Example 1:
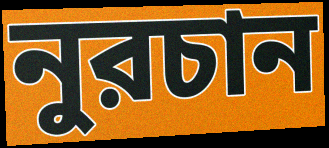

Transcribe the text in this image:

নুরচান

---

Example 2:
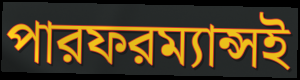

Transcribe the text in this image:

পারফরম্যান্সই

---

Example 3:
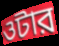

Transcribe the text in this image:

ওটার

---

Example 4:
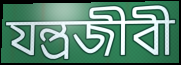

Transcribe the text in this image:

যন্ত্রজীবী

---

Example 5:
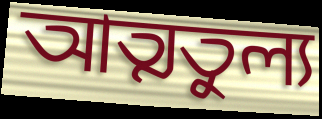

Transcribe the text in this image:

আত্মতুল্য